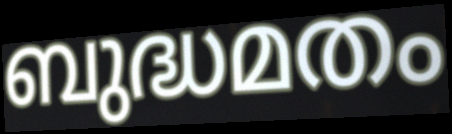
ബുദ്ധമതം